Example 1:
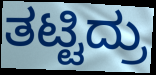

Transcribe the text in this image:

ತಟ್ಟಿದ್ರು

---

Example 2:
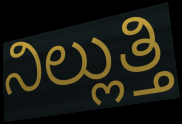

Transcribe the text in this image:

ನಿಲ್ಲುತ್ತಿ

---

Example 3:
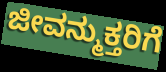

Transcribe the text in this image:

ಜೀವನ್ಮುಕ್ತರಿಗೆ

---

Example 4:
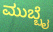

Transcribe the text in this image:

ಮುಬ್ಬೈ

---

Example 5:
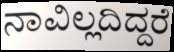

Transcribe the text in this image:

ನಾವಿಲ್ಲದಿದ್ದರೆ